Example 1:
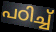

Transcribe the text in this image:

പഠിച്ച്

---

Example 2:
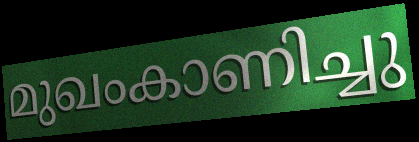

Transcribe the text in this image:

മുഖംകാണിച്ചു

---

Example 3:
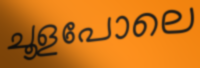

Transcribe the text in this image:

ചൂളപോലെ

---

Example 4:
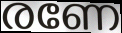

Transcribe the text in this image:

രണേ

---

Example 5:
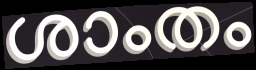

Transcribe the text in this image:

ശാംതം